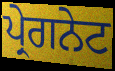
ਪ੍ਰੇਗਨੇਟ